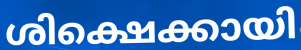
ശിക്ഷെക്കായി